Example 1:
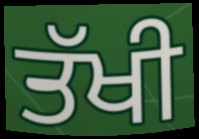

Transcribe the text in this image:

ਤੱਖੀ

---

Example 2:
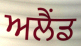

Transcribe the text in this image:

ਅਲੈਂਡ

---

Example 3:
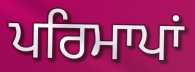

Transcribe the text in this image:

ਪਰਿਮਾਪਾਂ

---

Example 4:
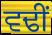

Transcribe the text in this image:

ਵਢੀਂ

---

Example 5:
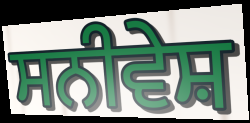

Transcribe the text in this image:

ਸਨੀਵੇਸ਼